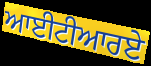
ਆਈਟੀਆਰਏ